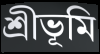
শ্রীভূমি